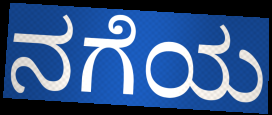
ನಗೆಯ